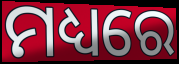
ମଧ୍ୟରେ